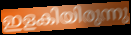
ഇളകിയിരുന്നു